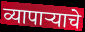
व्यापाऱ्याचे